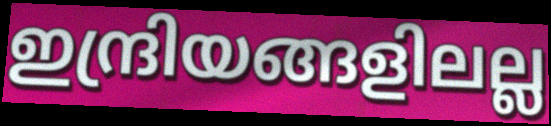
ഇന്ദ്രിയങ്ങളിലല്ല